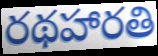
రథహారతి